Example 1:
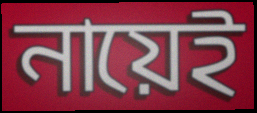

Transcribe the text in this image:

নায়েই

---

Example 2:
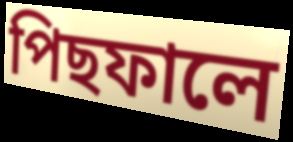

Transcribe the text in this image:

পিছফালে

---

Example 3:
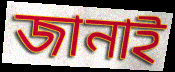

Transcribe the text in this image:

জানাই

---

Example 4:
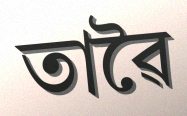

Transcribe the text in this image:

তাৱৈ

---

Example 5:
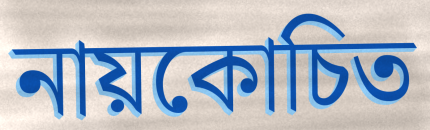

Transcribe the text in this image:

নায়কোচিত